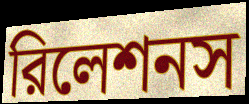
রিলেশনস